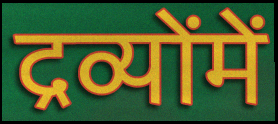
द्रव्योंमें